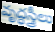
వృద్ధస్త్రీలు